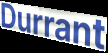
Durrant